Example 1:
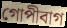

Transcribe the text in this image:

গোপীবাগ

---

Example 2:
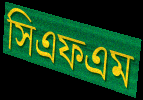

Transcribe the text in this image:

সিএফএম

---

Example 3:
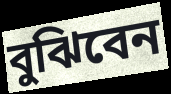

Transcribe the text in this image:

বুঝিবেন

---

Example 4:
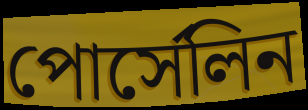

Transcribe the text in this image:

পোর্সেলিন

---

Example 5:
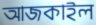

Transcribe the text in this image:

আজকাইল